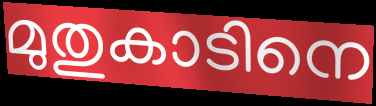
മുതുകാടിനെ